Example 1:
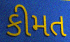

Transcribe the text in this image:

કીમત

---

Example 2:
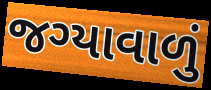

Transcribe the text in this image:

જગ્યાવાળું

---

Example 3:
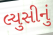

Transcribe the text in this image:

લ્યુસીનું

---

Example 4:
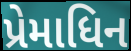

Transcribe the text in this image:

પ્રેમાધિન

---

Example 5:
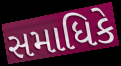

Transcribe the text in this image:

સમાધિકે